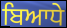
ਬਿਆਧੇ